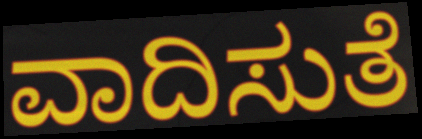
ವಾದಿಸುತೆ